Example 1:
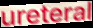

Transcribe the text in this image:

ureteral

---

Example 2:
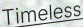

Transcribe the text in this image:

Timeless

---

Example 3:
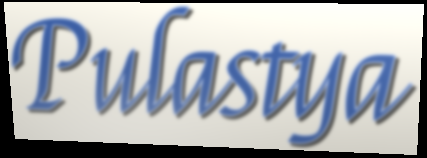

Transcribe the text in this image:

Pulastya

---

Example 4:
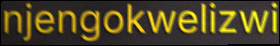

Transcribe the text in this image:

njengokwelizwi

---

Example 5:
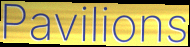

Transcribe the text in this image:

Pavilions